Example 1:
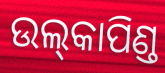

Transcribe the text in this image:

ଉଲ୍‌କାପିଣ୍ଡ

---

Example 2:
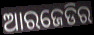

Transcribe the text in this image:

ଆରଜେଡିର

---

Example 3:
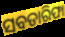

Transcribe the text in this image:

ସବଡାରିଫା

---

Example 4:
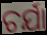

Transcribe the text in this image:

ଚର୍ଯା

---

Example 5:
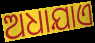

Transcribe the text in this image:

ଅଧାଯାଏ